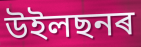
উইলছনৰ